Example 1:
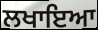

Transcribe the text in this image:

ਲਖਾਇਆ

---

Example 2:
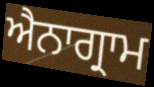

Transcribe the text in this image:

ਐਨਾਗ੍ਰਾਮ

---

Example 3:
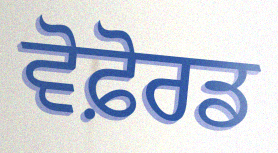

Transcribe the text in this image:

ਵੋਫ਼ੋਰਡ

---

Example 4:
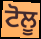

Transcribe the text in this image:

ਟੋਲੂ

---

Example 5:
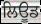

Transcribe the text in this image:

ਲਿਊਡ